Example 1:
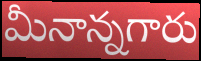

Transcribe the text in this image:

మీనాన్నగారు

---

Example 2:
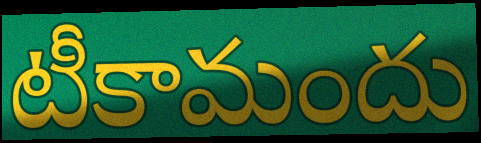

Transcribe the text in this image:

టీకామందు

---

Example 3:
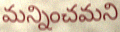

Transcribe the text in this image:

మన్నించమని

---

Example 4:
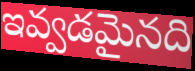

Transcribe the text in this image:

ఇవ్వడమైనది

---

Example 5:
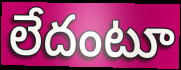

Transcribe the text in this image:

లేదంటూ